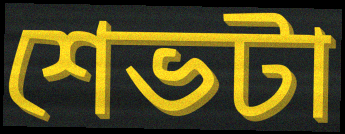
শেভটা